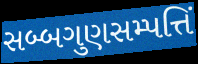
સબ્બગુણસમ્પત્તિં